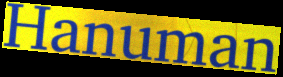
Hanuman